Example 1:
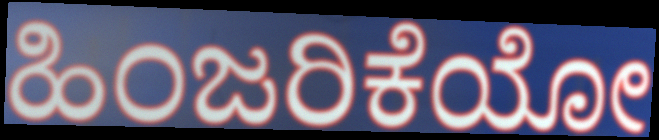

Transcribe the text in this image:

ಹಿಂಜರಿಕೆಯೋ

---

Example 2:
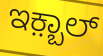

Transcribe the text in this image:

ಇಕ಼್ಬಾಲ್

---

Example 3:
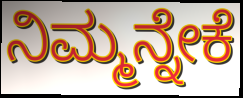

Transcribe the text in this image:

ನಿಮ್ಮನ್ನೇಕೆ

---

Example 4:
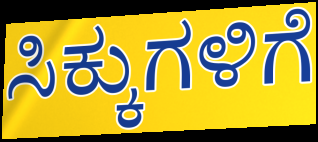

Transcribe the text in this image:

ಸಿಕ್ಕುಗಳಿಗೆ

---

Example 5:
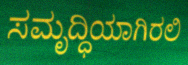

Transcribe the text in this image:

ಸಮೃದ್ಧಿಯಾಗಿರಲಿ